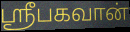
ஸ்ரீபகவான்